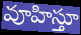
వూహిస్తూ